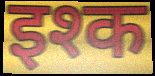
इश्क